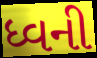
ધ્વની